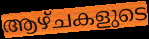
ആഴ്ചകളുടെ